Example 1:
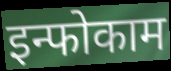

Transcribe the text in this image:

इन्फोकाम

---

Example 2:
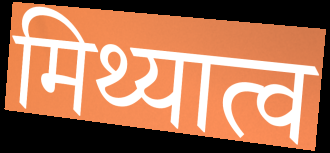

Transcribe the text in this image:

मिथ्यात्व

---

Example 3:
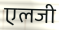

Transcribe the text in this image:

एलजी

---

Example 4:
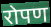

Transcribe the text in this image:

रोपण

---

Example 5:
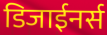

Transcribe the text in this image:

डिजाईनर्स